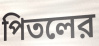
পিতলের